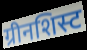
ग्रीनशिस्ट